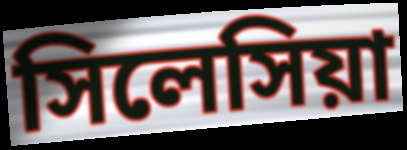
সিলেসিয়া